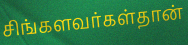
சிங்களவர்கள்தான்